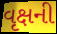
વૃક્ષની